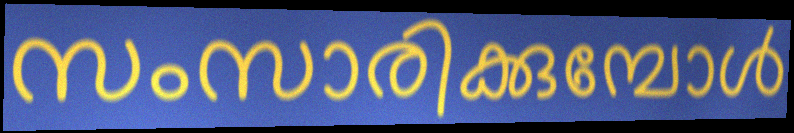
സംസാരിക്കുമ്പോൾ